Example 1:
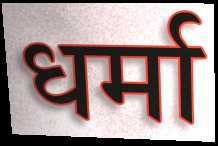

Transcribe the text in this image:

धर्मा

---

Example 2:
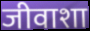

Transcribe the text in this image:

जीवाशा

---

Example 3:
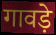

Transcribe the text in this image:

गावड़े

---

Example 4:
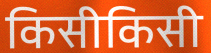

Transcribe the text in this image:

किसीकिसी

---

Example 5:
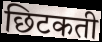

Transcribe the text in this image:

छिटकती